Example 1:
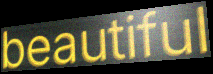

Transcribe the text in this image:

beautiful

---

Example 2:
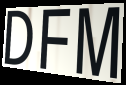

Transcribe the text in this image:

DFM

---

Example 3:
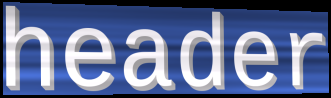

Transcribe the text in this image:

header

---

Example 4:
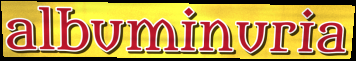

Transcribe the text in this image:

albuminuria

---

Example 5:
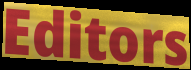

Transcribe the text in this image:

Editors